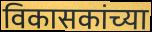
विकासकांच्या